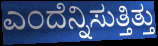
ಎಂದೆನ್ನಿಸುತ್ತಿತ್ತು